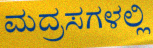
ಮದ್ರಸಗಳಲ್ಲಿ